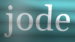
jode